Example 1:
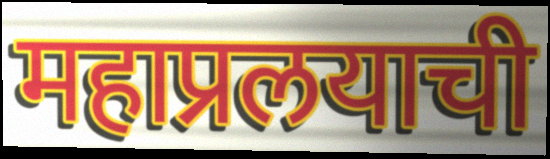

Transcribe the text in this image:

महाप्रलयाची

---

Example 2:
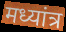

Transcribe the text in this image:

मध्यांत्र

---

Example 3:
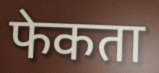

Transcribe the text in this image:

फेकता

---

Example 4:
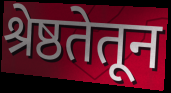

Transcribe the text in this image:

श्रेष्ठतेतून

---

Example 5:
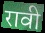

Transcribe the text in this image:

रावी